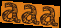
aaa